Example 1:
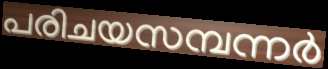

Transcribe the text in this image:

പരിചയസമ്പന്നർ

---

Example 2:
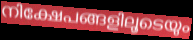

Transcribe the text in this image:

നിക്ഷേപങ്ങളിലൂടെയും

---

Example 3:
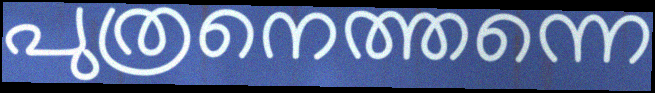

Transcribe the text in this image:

പുത്രനെത്തന്നെ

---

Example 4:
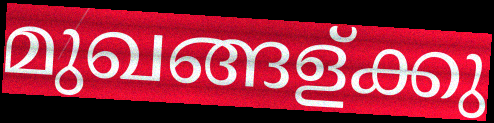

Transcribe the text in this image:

മുഖങ്ങള്ക്കു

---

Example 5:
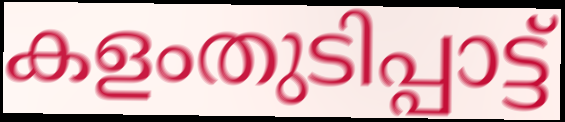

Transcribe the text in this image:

കളംതുടിപ്പാട്ട്